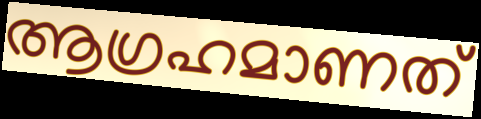
ആഗ്രഹമാണത്